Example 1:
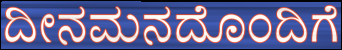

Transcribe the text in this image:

ದೀನಮನದೊಂದಿಗೆ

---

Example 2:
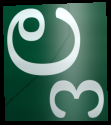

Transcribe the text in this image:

ಲ್ಲ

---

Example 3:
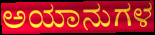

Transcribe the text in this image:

ಅಯಾನುಗಳ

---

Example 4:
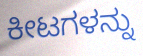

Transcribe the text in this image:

ಕೀಟಗಳನ್ನು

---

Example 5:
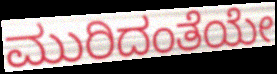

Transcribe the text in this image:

ಮುರಿದಂತೆಯೇ